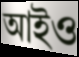
আইও